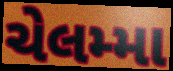
ચેલમ્મા